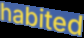
habited